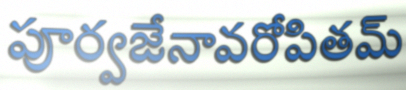
పూర్వజేనావరోపితమ్